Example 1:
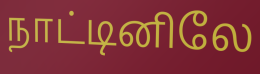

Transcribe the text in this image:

நாட்டினிலே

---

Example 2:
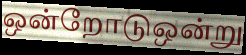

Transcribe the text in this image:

ஒன்றோடுஒன்று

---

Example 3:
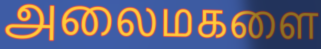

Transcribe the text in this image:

அலைமகளை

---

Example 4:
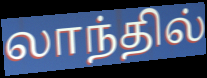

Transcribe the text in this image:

லாந்தில்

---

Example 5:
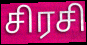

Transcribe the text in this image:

சிரசி